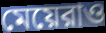
মেয়েরাও